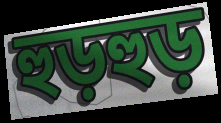
হুড়হুড়